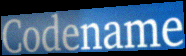
Codename